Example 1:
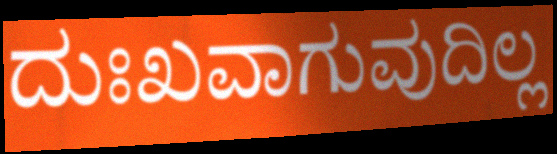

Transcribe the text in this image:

ದುಃಖವಾಗುವುದಿಲ್ಲ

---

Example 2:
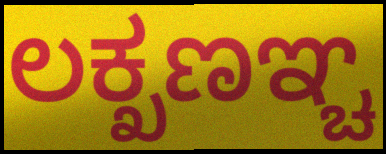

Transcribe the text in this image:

ಲಕ್ಖಣಞ್ಚ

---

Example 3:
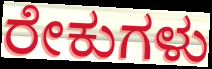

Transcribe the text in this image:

ರೇಕುಗಳು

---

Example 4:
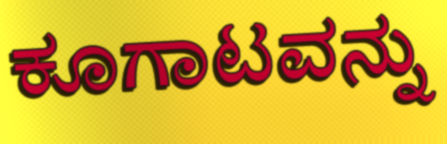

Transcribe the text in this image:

ಕೂಗಾಟವನ್ನು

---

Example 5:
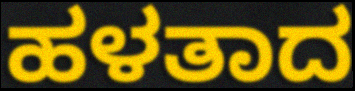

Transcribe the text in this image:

ಹಳತಾದ